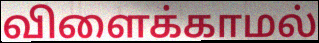
விளைக்காமல்